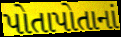
પોતાપોતાનાં